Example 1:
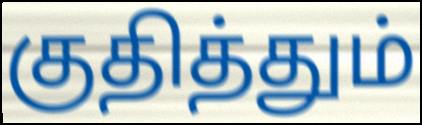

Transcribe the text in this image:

குதித்தும்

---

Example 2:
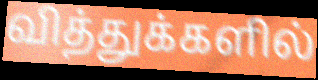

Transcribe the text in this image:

வித்துக்களில்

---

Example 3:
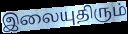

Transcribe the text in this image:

இலையுதிரும்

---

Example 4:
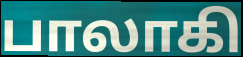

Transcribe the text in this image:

பாலாகி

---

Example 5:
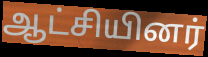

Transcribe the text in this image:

ஆட்சியினர்